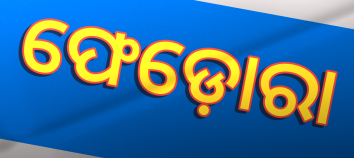
ଫେଡ଼ୋରା